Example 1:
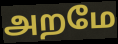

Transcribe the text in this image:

அறமே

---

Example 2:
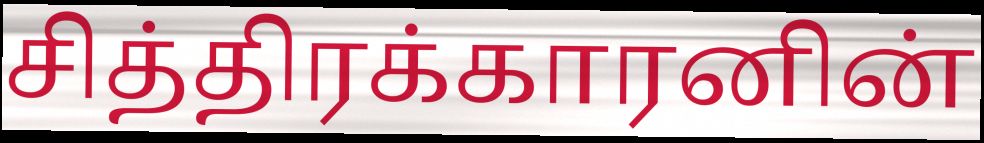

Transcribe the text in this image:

சித்திரக்காரனின்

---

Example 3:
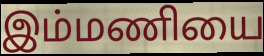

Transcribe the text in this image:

இம்மணியை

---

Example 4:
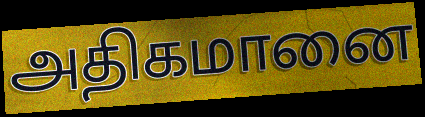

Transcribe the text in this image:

அதிகமானை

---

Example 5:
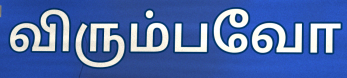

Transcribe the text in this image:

விரும்பவோ